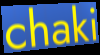
chaki